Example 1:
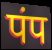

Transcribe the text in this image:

पंप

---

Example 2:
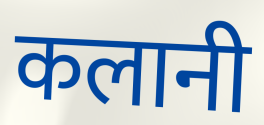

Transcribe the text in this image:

कलानी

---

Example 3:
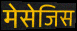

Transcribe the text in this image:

मेसेजिस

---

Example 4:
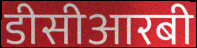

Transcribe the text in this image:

डीसीआरबी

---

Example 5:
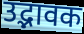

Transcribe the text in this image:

उद्भावक